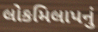
લોકમિલાપનું